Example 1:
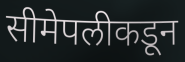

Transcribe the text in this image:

सीमेपलीकडून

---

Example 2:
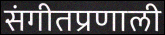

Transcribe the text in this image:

संगीतप्रणाली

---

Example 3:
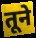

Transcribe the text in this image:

तूने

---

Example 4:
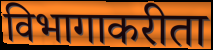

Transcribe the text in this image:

विभागाकरीता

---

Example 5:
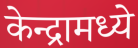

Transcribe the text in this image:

केन्द्रामध्ये